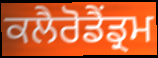
ਕਲੈਰੋਡੈਂਡ੍ਰਮ